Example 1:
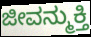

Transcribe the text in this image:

ಜೀವನ್ಮುಕ್ತಿ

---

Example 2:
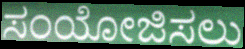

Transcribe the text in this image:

ಸಂಯೋಜಿಸಲು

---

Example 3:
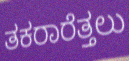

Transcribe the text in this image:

ತಕರಾರೆತ್ತಲು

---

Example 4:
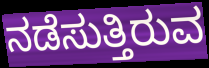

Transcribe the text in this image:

ನಡೆಸುತ್ತಿರುವ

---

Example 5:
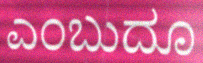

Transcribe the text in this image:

ಎಂಬುದೂ